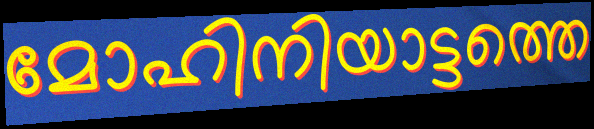
മോഹിനിയാട്ടത്തെ